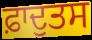
ਫ਼ਾਦੁਤਸ